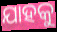
ଯାହକୁ